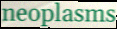
neoplasms